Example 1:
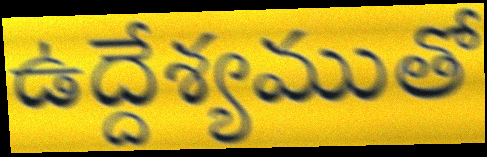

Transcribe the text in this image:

ఉద్దేశ్యముతో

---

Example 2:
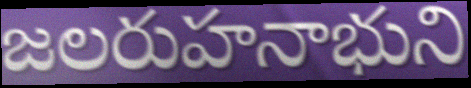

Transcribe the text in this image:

జలరుహనాభుని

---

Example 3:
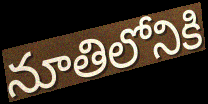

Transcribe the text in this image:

నూతిలోనికి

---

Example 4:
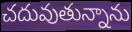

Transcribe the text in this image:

చదువుతున్నాను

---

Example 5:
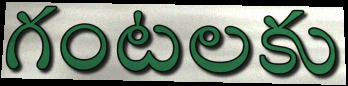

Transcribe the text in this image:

గంటలకు